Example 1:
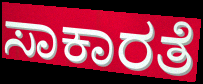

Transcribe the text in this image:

ಸಾಕಾರತೆ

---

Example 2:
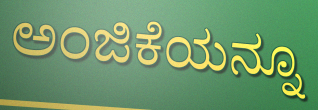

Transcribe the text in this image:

ಅಂಜಿಕೆಯನ್ನೂ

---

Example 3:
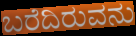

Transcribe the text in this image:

ಬರೆದಿರುವನು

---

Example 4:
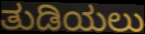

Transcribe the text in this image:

ತುಡಿಯಲು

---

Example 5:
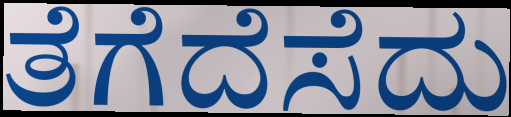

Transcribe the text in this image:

ತೆಗೆದೆಸೆದು